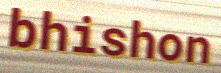
bhishon